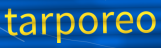
tarporeo